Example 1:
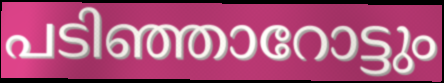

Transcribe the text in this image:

പടിഞ്ഞാറോട്ടും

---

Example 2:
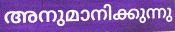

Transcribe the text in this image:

അനുമാനിക്കുന്നു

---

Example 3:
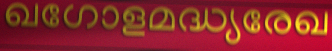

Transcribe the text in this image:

ഖഗോളമദ്ധ്യരേഖ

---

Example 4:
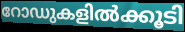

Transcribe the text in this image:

റോഡുകളിൽക്കൂടി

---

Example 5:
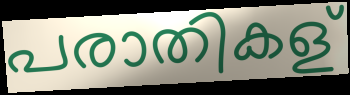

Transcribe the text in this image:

പരാതികള്